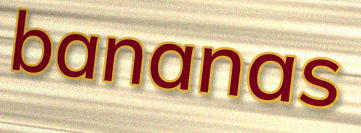
bananas